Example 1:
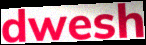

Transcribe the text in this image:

dwesh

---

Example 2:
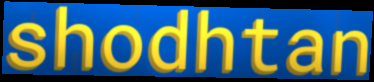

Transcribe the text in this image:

shodhtan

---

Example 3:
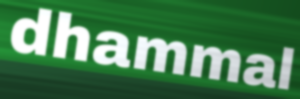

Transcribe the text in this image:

dhammal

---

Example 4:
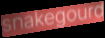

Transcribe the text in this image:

snakegourd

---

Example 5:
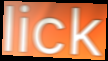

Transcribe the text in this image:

lick